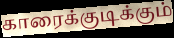
காரைக்குடிக்கும்